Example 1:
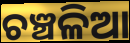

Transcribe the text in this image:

ଚଞ୍ଚଳିଆ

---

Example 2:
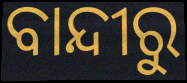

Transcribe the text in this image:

ବାନ୍ଦୀରୁ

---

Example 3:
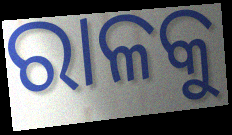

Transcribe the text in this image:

ରାଳକୁ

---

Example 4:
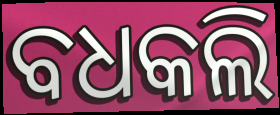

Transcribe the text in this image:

ବଧକଲି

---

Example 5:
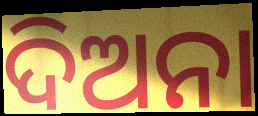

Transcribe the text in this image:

ଦିଅନା